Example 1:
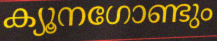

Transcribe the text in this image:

ക്യൂനഗോണ്ടും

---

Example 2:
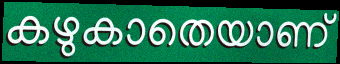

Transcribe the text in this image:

കഴുകാതെയാണ്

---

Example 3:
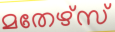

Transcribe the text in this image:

മതേഴ്സ്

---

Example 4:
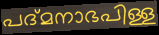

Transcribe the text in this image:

പദ്മനാഭപിള്ള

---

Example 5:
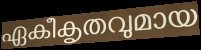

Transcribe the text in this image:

ഏകീകൃതവുമായ